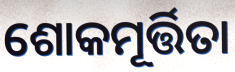
ଶୋକମୂର୍ତ୍ତିତା